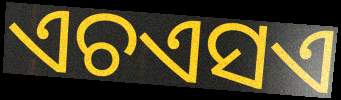
ଏଚଏସଏ